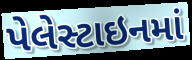
પેલેસ્ટાઇનમાં